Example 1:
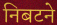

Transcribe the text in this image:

निबटने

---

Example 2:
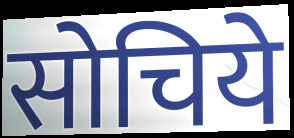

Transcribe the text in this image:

सोचिये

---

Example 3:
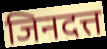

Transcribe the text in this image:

जिनदत्त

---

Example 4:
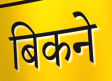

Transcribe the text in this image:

बिकने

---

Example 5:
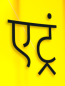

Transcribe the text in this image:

एट्रं